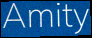
Amity